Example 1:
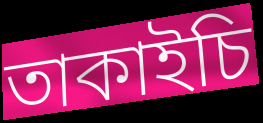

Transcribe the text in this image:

তাকাইচি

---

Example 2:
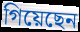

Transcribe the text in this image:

গিয়েছেন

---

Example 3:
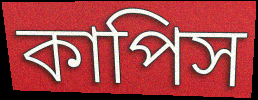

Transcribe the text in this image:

কাপিস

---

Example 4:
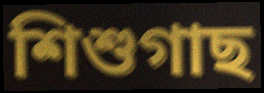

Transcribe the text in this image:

শিশুগাছ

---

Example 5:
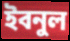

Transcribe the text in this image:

ইবনুল